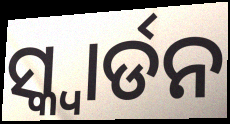
ସ୍କ୍ବାର୍ଡନ